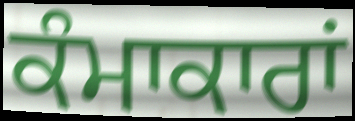
ਕੰਮਾਕਾਰਾਂ